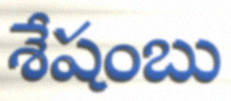
శేషంబు